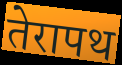
तेरापथ